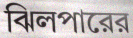
ঝিলপারের